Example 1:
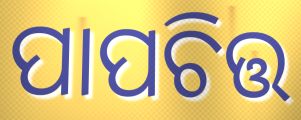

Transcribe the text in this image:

ପାପଚିତ୍ତ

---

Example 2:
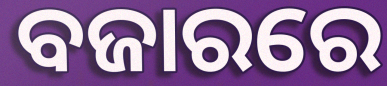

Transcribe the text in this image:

ବଜାରରେ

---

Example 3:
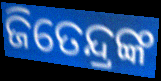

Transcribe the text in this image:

ଜିତେନ୍ଦ୍ରଙ୍କ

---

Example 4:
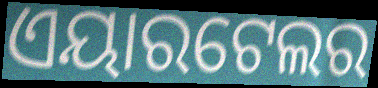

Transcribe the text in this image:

ଏୟାରଟେଲର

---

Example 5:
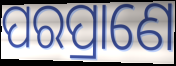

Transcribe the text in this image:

ପରପ୍ରାଣେ